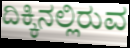
ದಿಕ್ಕಿನಲ್ಲಿರುವ